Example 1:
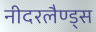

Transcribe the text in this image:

नीदरलैण्ड्स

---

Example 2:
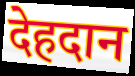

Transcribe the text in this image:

देहदान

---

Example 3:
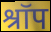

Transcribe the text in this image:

श्रॉप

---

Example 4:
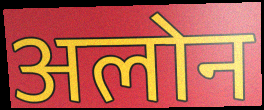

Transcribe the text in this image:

अलोन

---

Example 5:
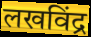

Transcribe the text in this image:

लखविंद्र